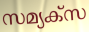
സമ്യക്സ